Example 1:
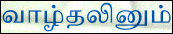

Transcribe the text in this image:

வாழ்தலினும்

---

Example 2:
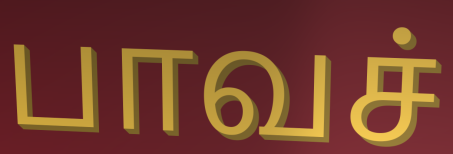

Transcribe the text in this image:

பாவச்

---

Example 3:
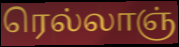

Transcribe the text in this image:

ரெல்லாஞ்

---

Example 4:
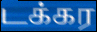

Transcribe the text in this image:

டக்கர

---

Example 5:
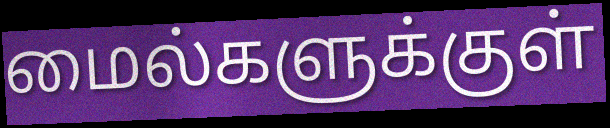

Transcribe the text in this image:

மைல்களுக்குள்